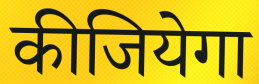
कीजियेगा